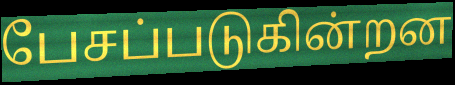
பேசப்படுகின்றன